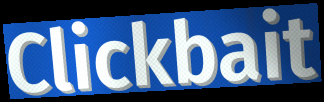
Clickbait